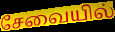
சேவையில்